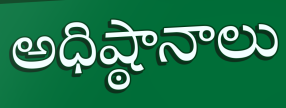
అధిష్ఠానాలు